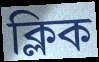
ক্লিক